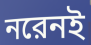
নরেনই